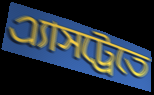
এ্যাসট্রেতে